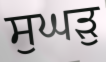
ਸੁਘੜੁ